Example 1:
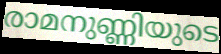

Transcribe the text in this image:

രാമനുണ്ണിയുടെ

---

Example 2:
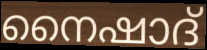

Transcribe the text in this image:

നൈഷാദ്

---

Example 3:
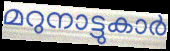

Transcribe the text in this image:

മറുനാട്ടുകാർ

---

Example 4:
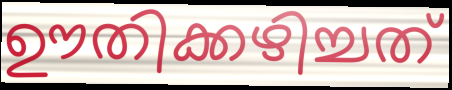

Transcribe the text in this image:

ഊതിക്കഴിച്ചത്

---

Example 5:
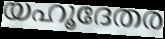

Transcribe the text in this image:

യഹൂദേതര